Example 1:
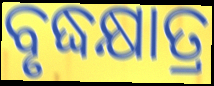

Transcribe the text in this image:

ବୃଦ୍ଧକ୍ଷାତ୍ର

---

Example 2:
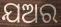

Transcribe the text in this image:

ଯଅର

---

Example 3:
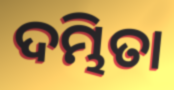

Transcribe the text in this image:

ଦମ୍ଭିତା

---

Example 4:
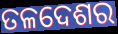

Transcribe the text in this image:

ତଳଦେଶର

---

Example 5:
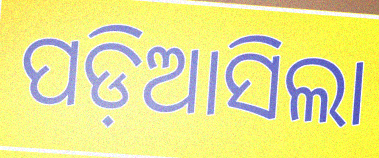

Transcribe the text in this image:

ପଡ଼ିଆସିଲା